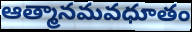
ఆత్మానమవధూతం